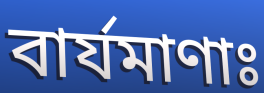
বার্যমাণাঃ